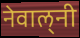
नेवाल्नी